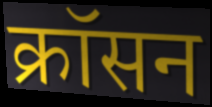
क्रॉसन